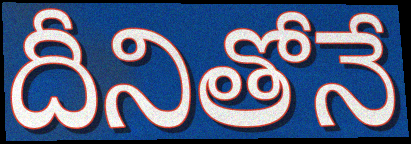
దీనితోనే